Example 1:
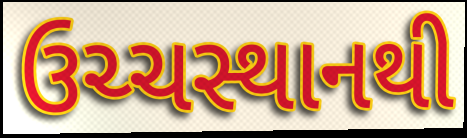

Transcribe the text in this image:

ઉચ્ચસ્થાનથી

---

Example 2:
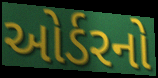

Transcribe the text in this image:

ઓર્ડરનો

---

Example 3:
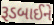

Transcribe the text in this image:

રૂડબાઈને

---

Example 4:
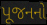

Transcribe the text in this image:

પૂજનનો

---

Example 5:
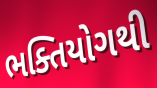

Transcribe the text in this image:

ભક્તિયોગથી